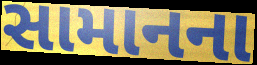
સામાનના